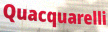
Quacquarelli